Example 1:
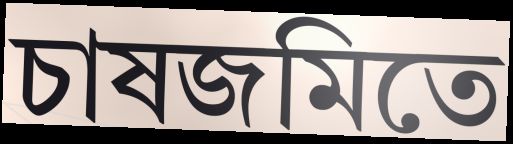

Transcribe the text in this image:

চাষজমিতে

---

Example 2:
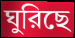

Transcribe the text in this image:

ঘুরিছে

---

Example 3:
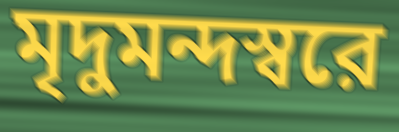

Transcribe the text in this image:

মৃদুমন্দস্বরে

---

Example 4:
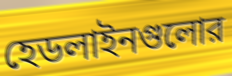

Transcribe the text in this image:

হেডলাইনগুলোর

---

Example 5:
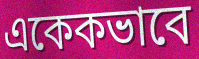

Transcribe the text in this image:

একেকভাবে